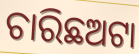
ଚାରିଛଅଟା